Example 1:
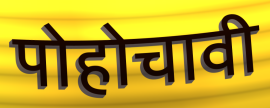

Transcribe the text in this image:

पोहोचावी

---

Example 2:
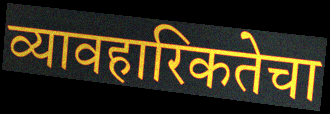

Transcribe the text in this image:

व्यावहारिकतेचा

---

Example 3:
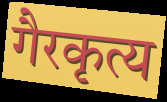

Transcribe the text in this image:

गैरकृत्य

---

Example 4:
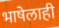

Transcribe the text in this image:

भाषेलाही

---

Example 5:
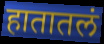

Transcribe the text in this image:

हातातलं